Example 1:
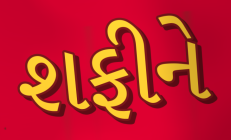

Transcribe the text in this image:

શફીને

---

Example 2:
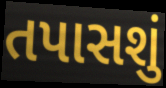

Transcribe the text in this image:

તપાસશું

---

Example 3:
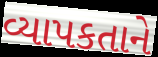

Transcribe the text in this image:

વ્યાપકતાને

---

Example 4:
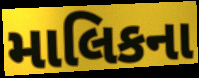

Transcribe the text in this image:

માલિકના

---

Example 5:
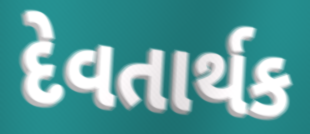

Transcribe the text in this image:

દેવતાર્થક